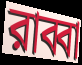
রাব্বা